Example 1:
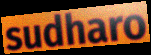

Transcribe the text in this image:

sudharo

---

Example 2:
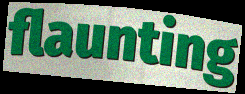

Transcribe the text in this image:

flaunting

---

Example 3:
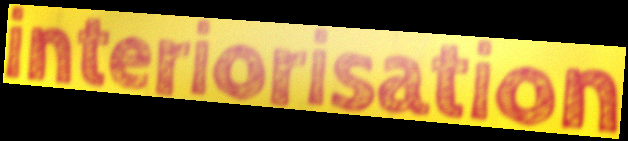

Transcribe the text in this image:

interiorisation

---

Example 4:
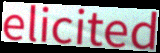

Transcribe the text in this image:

elicited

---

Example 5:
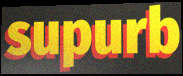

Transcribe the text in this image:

supurb